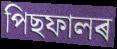
পিছফালৰ